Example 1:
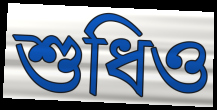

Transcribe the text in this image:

শুধিও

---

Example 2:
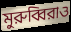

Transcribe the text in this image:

মুরুব্বিরাও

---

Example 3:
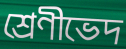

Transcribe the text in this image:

শ্রেণীভেদ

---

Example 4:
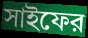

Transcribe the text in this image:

সাইফের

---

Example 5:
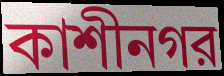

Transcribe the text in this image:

কাশীনগর